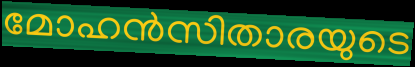
മോഹൻസിതാരയുടെ